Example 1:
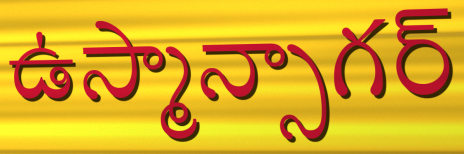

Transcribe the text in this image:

ఉస్మాన్సాగర్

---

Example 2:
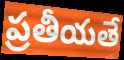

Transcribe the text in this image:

ప్రతీయతే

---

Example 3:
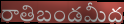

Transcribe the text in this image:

రాతిబండమీద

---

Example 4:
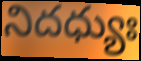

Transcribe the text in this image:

నిదధ్యుః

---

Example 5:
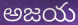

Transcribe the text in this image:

అజయ